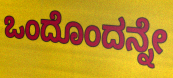
ಒಂದೊಂದನ್ನೇ